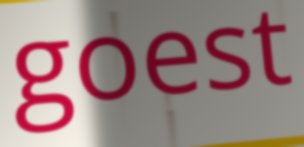
goest